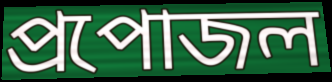
প্রপোজল